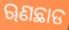
ୠଣଛାଡ